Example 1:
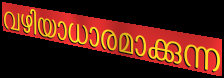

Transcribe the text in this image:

വഴിയാധാരമാക്കുന്ന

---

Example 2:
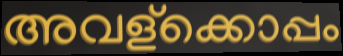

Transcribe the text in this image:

അവള്ക്കൊപ്പം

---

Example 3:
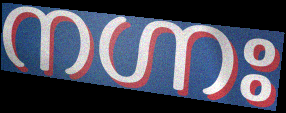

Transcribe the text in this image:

നഗ്നഃ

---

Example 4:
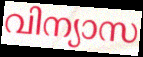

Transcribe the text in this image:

വിന്യാസ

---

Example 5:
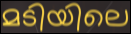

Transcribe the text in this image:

മടിയിലെ